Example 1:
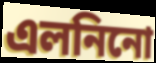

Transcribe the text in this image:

এলনিনো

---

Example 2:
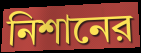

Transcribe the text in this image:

নিশানের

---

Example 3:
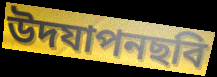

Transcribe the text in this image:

উদযাপনছবি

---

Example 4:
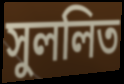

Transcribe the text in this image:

সুললিত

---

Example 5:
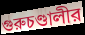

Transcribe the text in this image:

গুরুচণ্ডালীর